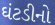
ઘંટડીનો